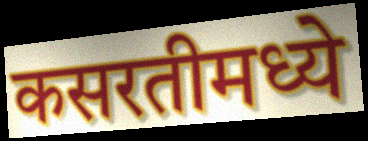
कसरतीमध्ये